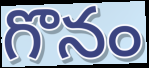
గొనం